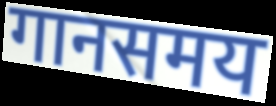
गानसमय